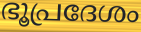
ഭൂപ്രദേശം